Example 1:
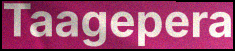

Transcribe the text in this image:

Taagepera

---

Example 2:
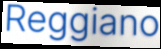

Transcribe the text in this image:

Reggiano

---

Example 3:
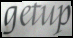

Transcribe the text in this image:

getup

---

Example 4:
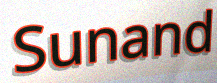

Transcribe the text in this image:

Sunand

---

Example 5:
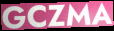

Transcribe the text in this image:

GCZMA